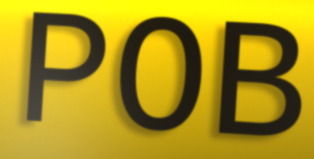
POB